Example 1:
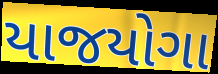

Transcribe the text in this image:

યાજયોગા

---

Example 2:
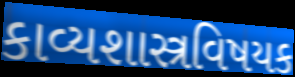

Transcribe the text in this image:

કાવ્યશાસ્ત્રવિષયક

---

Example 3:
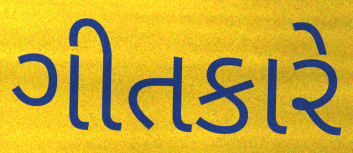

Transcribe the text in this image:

ગીતકારે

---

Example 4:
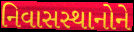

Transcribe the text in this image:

નિવાસસ્થાનોને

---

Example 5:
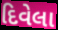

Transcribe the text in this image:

દિવેલા